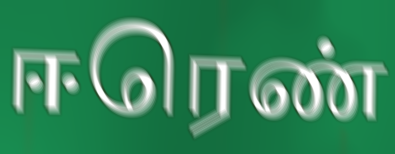
ஈரெண்